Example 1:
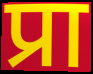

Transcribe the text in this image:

प्रा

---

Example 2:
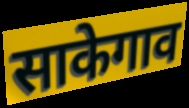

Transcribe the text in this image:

साकेगाव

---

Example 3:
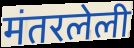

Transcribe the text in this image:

मंतरलेली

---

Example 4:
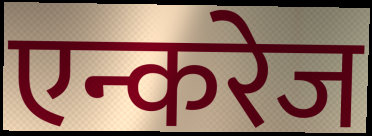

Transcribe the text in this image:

एन्करेज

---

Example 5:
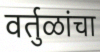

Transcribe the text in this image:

वर्तुळांचा